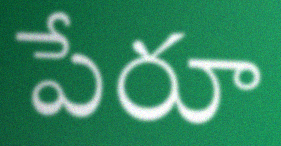
పేరూ